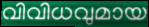
വിവിധവുമായ